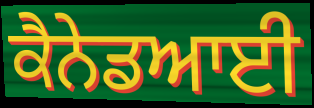
ਕੈਨੇਡਆਈ